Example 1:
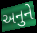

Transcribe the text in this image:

અનુને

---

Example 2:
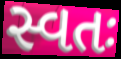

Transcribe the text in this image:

સ્વતઃ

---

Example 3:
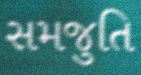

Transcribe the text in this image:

સમજુતિ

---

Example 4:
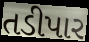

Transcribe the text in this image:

તડીપાર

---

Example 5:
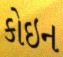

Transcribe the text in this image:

કોઇન